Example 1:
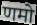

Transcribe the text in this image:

णमो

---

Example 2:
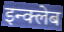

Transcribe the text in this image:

इन्क्लेब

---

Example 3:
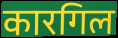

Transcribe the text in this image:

कारगिल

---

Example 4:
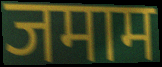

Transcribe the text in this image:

जमाम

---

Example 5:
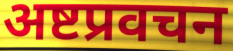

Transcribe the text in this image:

अष्टप्रवचन